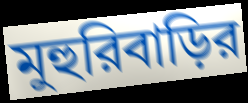
মুহুরিবাড়ির